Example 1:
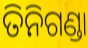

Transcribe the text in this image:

ତିନିଗଣ୍ଡା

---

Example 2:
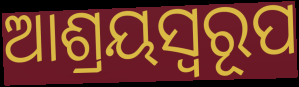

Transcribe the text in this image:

ଆଶ୍ରୟସ୍ୱରୂପ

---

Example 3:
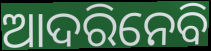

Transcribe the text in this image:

ଆଦରିନେବି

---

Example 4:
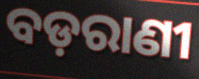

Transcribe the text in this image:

ବଡ଼ରାଣୀ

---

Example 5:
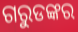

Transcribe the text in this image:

ଗରୁଡଙ୍କର